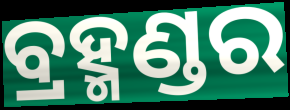
ବ୍ରହ୍ମଣ୍ଡର